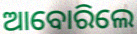
ଆବୋରିଲେ